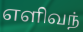
எளிவந்